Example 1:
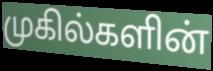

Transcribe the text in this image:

முகில்களின்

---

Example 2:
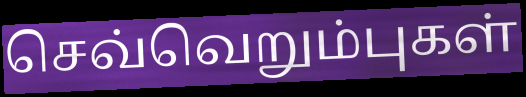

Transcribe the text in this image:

செவ்வெறும்புகள்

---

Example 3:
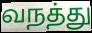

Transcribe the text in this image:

வநத்து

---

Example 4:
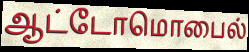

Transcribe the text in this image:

ஆட்டோமொபைல்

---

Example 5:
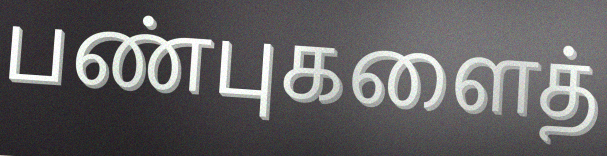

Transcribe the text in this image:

பண்புகளைத்